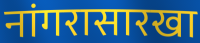
नांगरासारखा